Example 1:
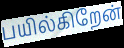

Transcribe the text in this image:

பயில்கிறேன்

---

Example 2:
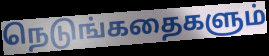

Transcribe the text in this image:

நெடுங்கதைகளும்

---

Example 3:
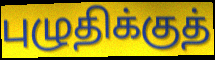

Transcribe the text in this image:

புழுதிக்குத்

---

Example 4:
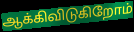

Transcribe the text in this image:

ஆக்கிவிடுகிறோம்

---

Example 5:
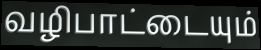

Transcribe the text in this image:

வழிபாட்டையும்